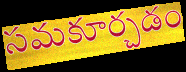
సమకూర్చడం